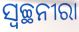
ସ୍ୱଚ୍ଛନୀରା